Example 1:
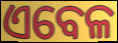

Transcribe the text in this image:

ଏବେଳ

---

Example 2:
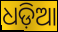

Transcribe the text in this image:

ଧଡ଼ିଆ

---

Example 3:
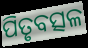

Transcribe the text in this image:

ପିତୃବତ୍ସଳ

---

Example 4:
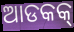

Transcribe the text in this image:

ଆଡକକ୍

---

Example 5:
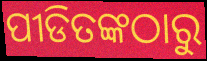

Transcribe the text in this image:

ପୀଡିତଙ୍କଠାରୁ